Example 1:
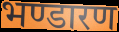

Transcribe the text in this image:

भण्डारण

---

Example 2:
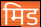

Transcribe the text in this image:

मिड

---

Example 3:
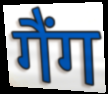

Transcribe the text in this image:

गैंग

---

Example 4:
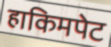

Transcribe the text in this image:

हाकिमपेट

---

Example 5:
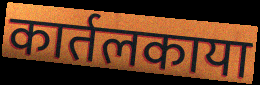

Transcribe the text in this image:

कार्तलकाया